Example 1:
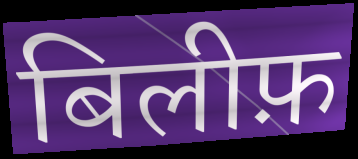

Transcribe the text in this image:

बिलीफ़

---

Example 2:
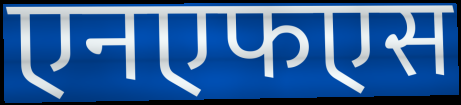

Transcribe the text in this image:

एनएफएस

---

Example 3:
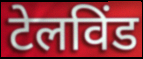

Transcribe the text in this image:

टेलविंड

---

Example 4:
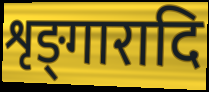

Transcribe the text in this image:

शृङ्गारादि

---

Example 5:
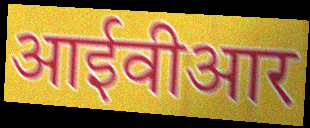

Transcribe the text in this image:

आईवीआर